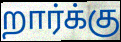
றார்க்கு